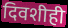
दिवशीही